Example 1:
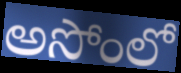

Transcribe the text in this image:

అసోంలో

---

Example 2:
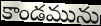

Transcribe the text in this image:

కాండమును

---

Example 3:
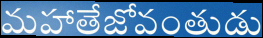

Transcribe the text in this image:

మహాతేజోవంతుడు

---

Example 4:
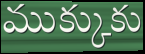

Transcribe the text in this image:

ముక్కుకు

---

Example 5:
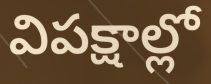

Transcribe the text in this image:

విపక్షాల్లో